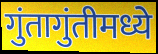
गुंतागुंतीमध्ये